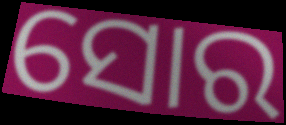
ସୋର